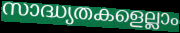
സാദ്ധ്യതകളെല്ലാം